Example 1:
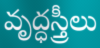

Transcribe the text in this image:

వృద్ధస్త్రీలు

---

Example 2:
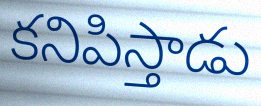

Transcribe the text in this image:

కనిపిస్తాడు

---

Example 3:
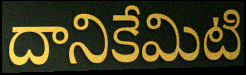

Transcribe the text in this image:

దానికేమిటి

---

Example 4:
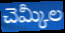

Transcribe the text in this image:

చెమ్కీల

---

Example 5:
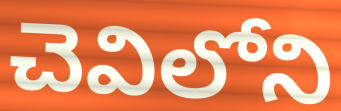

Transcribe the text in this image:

చెవిలోని